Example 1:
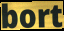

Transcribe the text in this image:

bort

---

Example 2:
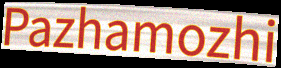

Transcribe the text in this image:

Pazhamozhi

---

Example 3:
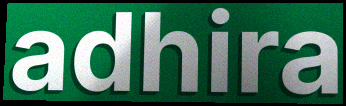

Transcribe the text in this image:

adhira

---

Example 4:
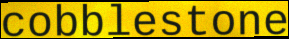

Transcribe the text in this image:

cobblestone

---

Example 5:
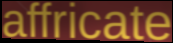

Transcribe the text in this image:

affricate